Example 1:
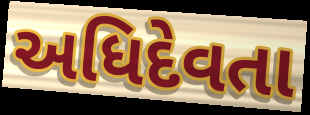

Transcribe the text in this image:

અધિદેવતા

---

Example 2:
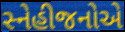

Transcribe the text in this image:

સ્નેહીજનોએ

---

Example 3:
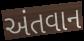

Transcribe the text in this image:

અંતવાન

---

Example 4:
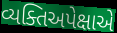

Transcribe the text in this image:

વ્યક્તિઅપેક્ષાએ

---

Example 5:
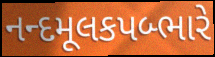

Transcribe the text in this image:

નન્દમૂલકપબ્ભારે